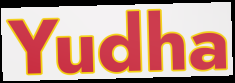
Yudha